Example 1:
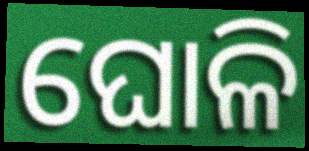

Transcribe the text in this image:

ଘୋଳି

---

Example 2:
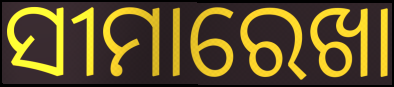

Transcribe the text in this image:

ସୀମାରେଖା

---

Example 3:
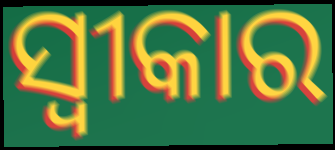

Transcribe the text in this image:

ସ୍ୱୀକାର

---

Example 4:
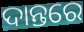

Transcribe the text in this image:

ଦାନ୍ତରେ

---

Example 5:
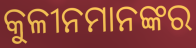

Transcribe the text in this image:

କୁଳୀନମାନଙ୍କର